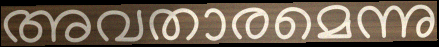
അവതാരമെന്നു